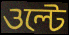
ওল্টে